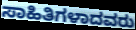
ಸಾಹಿತಿಗಳಾದವರು